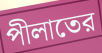
পীলাতের